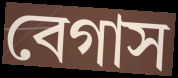
বেগাস